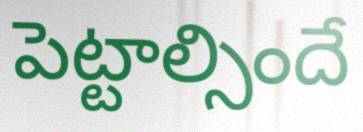
పెట్టాల్సిందే